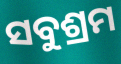
ସବୁଶ୍ରମ